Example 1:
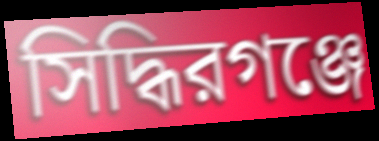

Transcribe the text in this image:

সিদ্ধিরগঞ্জে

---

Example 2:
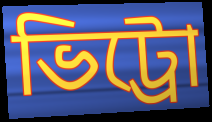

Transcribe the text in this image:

ভিট্রো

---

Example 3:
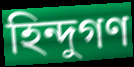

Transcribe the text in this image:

হিন্দুগণ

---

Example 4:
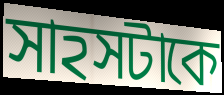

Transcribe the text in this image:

সাহসটাকে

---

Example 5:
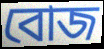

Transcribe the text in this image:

বোজ